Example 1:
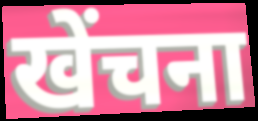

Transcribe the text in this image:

खेंचना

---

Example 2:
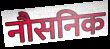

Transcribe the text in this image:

नौसनिक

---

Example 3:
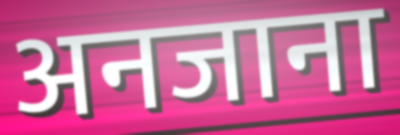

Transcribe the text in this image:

अनजाना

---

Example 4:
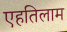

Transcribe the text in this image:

एहतिलाम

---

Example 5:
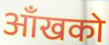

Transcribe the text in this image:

आँखको